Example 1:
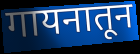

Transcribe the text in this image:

गायनातून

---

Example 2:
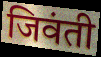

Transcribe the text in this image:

जिवंती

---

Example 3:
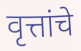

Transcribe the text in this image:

वृत्तांचे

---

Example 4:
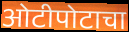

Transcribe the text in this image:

ओटीपोटाचा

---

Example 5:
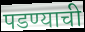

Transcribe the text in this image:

पडण्याची